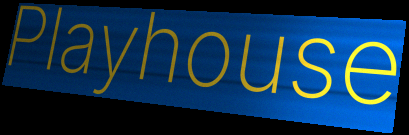
Playhouse